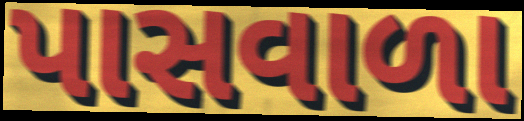
પાસવાળા